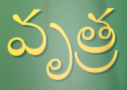
వృత్ర